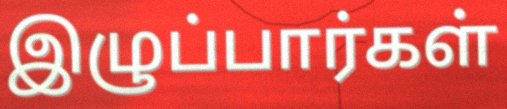
இழுப்பார்கள்